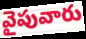
వైపువారు